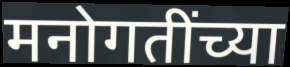
मनोगतींच्या